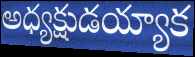
అధ్యక్షుడయ్యాక